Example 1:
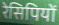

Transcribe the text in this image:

रेसिपियों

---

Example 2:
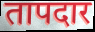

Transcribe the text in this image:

तापदार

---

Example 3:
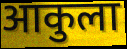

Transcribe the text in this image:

आकुला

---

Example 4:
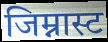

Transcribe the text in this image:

जिम्नास्ट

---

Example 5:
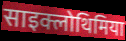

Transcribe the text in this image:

साइक्लोथिमिया